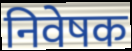
निवेषक